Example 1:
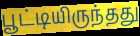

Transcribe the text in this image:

பூட்டியிருந்தது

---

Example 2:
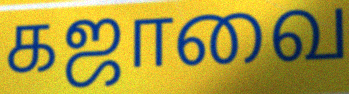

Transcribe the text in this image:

கஜாவை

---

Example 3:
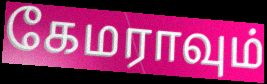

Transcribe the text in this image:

கேமராவும்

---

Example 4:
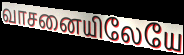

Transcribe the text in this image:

வாசனையிலேயே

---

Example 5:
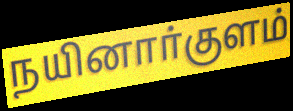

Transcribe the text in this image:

நயினார்குளம்